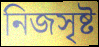
নিজসৃষ্ট